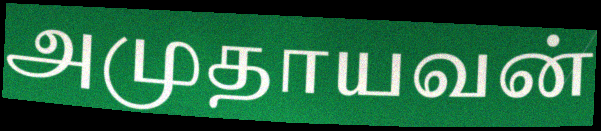
அமுதாயவன்